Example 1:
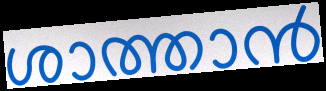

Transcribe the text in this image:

ശാത്താൻ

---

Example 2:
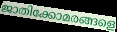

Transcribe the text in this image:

ജാതിക്കോമരങ്ങളെ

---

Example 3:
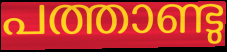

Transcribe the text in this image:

പത്താണ്ടു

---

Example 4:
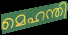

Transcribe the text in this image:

മെഹന്തി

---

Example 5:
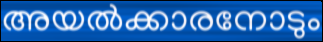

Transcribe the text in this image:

അയൽക്കാരനോടും